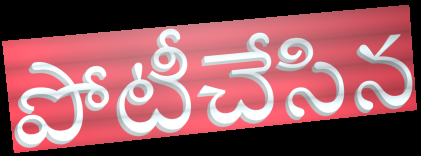
పోటీచేసిన